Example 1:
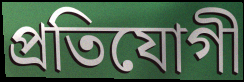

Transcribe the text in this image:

প্ৰতিযোগী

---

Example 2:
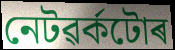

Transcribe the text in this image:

নেটৱৰ্কটোৰ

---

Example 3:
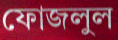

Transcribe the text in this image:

ফোজলুল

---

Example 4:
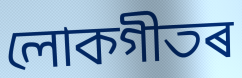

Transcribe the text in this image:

লোকগীতৰ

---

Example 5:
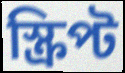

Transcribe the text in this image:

স্ক্ৰিপ্ট